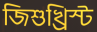
জিশুখ্রিস্ট